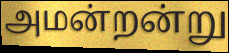
அமன்றன்று